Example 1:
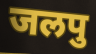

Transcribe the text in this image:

जलपु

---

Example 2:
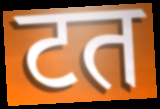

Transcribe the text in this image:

टत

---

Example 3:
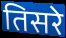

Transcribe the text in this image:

तिसरे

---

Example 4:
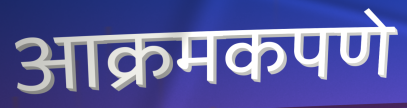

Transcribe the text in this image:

आक्रमकपणे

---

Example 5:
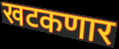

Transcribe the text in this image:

खटकणार